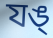
যঙ্